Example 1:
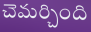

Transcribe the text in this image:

చెమర్చింది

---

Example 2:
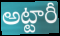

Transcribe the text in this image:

అట్టారీ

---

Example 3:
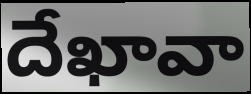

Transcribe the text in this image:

దేఖావా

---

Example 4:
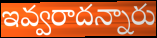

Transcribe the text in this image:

ఇవ్వరాదన్నారు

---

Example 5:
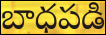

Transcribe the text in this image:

బాధపడి